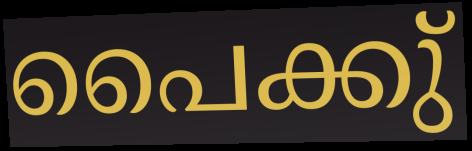
പൈക്കു്